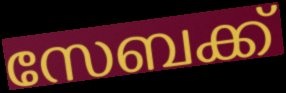
സേബക്ക്